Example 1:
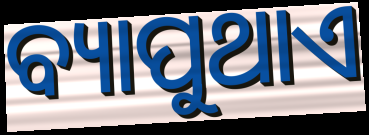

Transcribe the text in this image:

ବ୍ୟାପୁଥାଏ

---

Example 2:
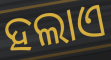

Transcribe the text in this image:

ହଲାଏ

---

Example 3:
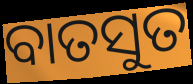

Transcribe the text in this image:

ବାତସୁତ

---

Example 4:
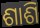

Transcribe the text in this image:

ଶାଶି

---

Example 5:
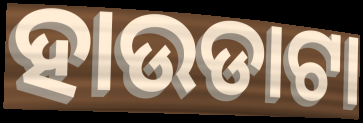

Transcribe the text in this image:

ହାଉଡାଟା